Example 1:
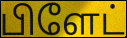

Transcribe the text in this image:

பிளேட்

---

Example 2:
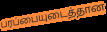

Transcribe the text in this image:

பரப்பையுடைத்தான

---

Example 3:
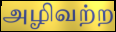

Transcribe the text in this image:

அழிவற்ற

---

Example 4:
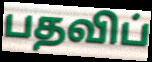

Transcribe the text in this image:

பதவிப்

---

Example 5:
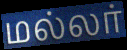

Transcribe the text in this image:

மல்லர்